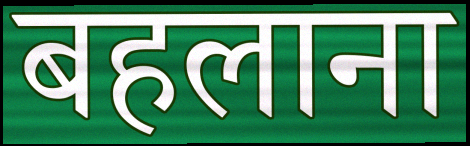
बहलाना